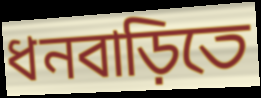
ধনবাড়িতে